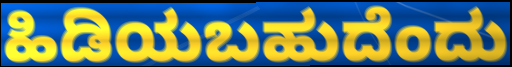
ಹಿಡಿಯಬಹುದೆಂದು